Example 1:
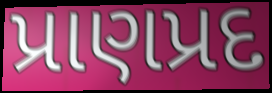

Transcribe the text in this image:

પ્રાણપ્રદ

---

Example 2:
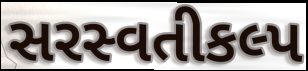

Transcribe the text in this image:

સરસ્વતીકલ્પ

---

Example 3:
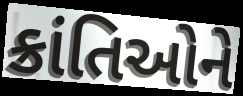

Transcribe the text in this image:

ક્રાંતિઓને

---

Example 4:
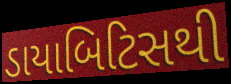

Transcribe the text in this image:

ડાયાબિટિસથી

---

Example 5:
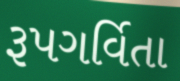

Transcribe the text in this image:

રૂપગર્વિતા